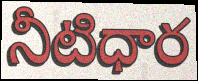
నీటిధార